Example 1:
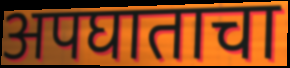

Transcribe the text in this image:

अपघाताचा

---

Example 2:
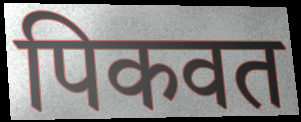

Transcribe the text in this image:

पिकवत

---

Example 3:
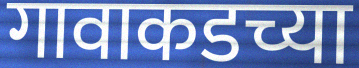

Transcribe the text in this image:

गावाकडच्या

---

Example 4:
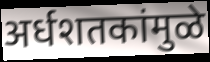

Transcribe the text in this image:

अर्धशतकांमुळे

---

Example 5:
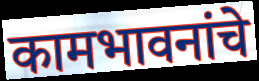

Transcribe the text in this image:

कामभावनांचे